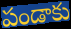
పండాకు